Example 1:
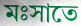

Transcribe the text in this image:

মঃসাতে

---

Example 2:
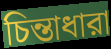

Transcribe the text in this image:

চিন্তাধারা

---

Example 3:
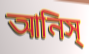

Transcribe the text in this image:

আনিস্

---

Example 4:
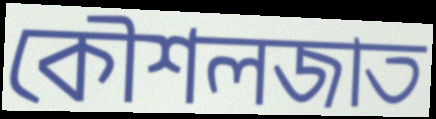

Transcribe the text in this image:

কৌশলজাত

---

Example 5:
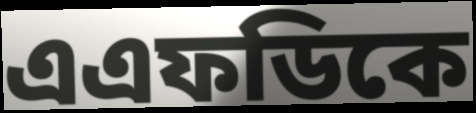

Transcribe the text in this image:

এএফডিকে